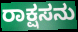
ರಾಕ್ಷಸನು